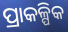
ପ୍ରାକଳ୍ପିକ